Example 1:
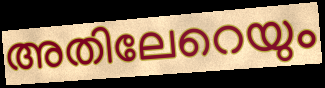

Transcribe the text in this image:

അതിലേറെയും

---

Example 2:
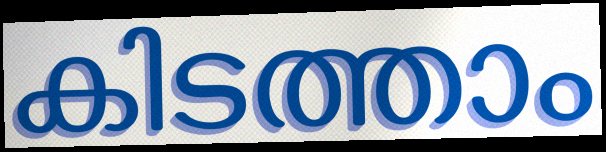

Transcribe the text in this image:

കിടത്താം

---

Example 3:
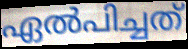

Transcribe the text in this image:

ഏൽപിച്ചത്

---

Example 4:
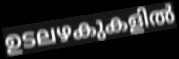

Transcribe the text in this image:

ഉടലഴകുകളിൽ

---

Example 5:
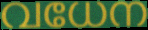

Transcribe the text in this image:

വധേന